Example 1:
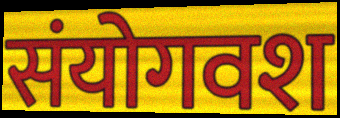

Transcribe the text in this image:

संयोगवश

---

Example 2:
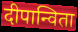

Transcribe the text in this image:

दीपान्विता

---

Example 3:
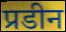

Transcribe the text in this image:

प्रडीन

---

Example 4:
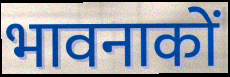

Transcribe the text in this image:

भावनाकों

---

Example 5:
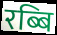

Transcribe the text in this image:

रब्बि